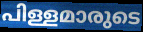
പിള്ളമാരുടെ